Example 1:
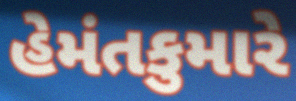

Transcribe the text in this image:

હેમંતકુમારે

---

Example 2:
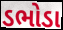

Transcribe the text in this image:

ડભોડા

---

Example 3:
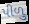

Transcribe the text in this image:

પીળુ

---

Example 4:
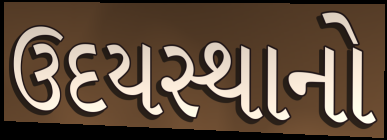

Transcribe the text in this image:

ઉદયસ્થાનો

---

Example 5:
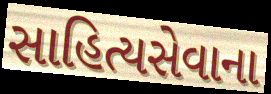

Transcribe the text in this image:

સાહિત્યસેવાના